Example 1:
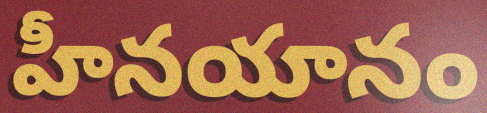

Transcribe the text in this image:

హీనయానం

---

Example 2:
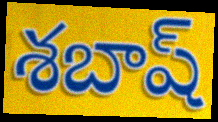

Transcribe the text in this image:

శబాష్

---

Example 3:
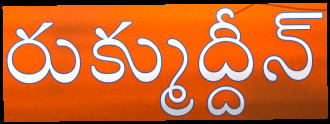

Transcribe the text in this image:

రుక్ముద్దీన్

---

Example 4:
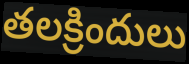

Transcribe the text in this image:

తలక్రిందులు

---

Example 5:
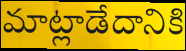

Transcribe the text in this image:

మాట్లాడేదానికి